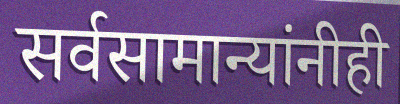
सर्वसामान्यांनीही